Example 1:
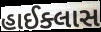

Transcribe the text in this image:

હાઈક્લાસ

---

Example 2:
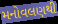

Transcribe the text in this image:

મનોવલણથી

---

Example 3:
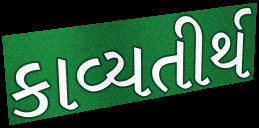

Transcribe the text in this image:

કાવ્યતીર્થ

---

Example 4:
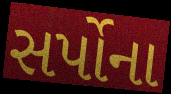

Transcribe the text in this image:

સર્પોના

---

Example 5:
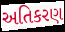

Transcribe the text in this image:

અતિકરણ